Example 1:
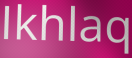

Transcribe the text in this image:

Ikhlaq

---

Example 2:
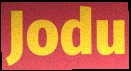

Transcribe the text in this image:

Jodu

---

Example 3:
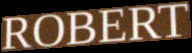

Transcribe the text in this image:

ROBERT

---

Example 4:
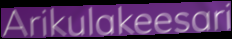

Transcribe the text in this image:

Arikulakeesari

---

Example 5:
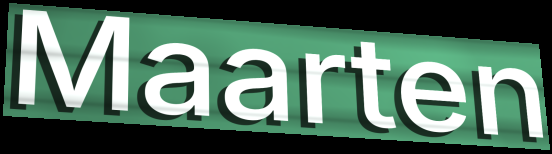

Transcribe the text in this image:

Maarten